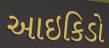
આઇકિડો